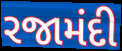
રજામંદી